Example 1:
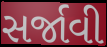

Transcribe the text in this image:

સર્જાવી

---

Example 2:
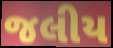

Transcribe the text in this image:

જલીય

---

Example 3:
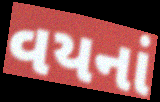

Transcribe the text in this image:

વયનાં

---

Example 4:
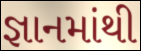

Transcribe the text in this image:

જ્ઞાનમાંથી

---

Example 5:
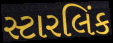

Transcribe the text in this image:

સ્ટારલિંક